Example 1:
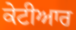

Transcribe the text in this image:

ਕੇਟੀਆਰ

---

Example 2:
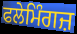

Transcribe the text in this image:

ਫਲੇਮਿੰਗਜ਼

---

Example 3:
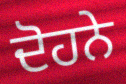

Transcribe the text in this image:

ਦੋਹਨੇ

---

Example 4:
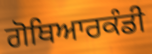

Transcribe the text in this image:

ਗੋਥਿਆਰਕੰਡੀ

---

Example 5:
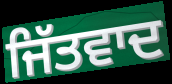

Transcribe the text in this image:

ਜਿੱਤਵਾਦ